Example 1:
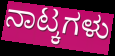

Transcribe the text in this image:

ನಾಟ್ಕಗಳು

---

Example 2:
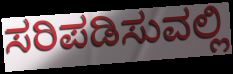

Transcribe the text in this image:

ಸರಿಪಡಿಸುವಲ್ಲಿ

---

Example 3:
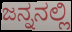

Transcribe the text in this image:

ಜನ್ನನಲ್ಲಿ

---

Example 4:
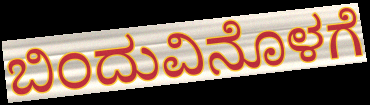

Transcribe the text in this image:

ಬಿಂದುವಿನೊಳಗೆ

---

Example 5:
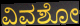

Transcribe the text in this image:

ವಿವಶೋ